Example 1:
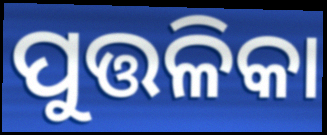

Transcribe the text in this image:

ପୁତ୍ତଳିକା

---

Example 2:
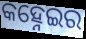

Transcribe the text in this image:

କହ୍ନେଇର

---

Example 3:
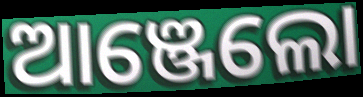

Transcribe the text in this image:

ଆଞ୍ଜେଲୋ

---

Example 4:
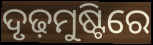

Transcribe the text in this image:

ଦୃଢ଼ମୁଷ୍ଟିରେ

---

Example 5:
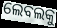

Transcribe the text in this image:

ଲେବଲକୁ